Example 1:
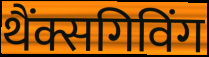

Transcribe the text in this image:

थैंक्सगिविंग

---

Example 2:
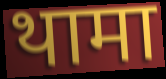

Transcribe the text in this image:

थामा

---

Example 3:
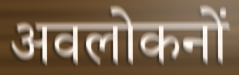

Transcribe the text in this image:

अवलोकनों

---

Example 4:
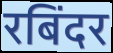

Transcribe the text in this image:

रबिंदर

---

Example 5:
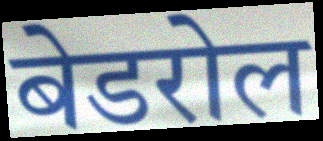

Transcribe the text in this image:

बेडरोल